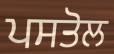
ਪਸਤੋਲ